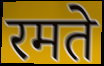
रमते